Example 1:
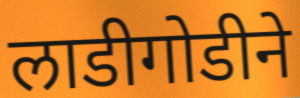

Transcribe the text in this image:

लाडीगोडीने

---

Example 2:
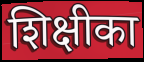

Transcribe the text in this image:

शिक्षीका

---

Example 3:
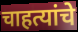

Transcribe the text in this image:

चाहत्यांचे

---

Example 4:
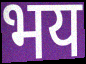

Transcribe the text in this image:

भय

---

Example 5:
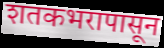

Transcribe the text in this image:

शतकभरापासून